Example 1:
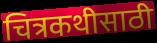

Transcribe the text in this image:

चित्रकथीसाठी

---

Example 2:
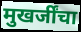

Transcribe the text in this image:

मुखर्जींचा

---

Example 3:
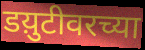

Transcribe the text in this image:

डय़ुटीवरच्या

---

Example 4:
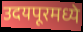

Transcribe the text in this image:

उदयपूरमध्ये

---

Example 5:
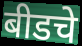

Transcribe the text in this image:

बीडचे